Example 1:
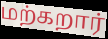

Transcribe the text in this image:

மற்கறார்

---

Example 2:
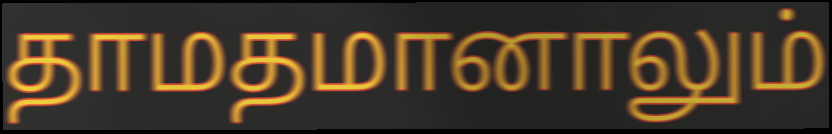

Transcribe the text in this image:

தாமதமானாலும்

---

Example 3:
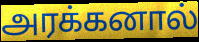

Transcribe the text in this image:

அரக்கனால்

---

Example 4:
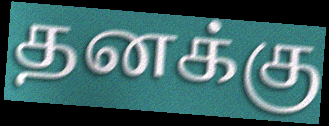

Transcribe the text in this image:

தனக்கு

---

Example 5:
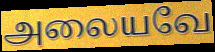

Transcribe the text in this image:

அலையவே